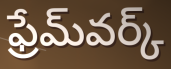
ఫ్రేమ్‌వర్క్